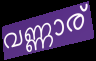
വണ്ണാര്